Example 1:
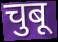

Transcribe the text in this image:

चुबू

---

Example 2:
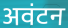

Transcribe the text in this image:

अवंटन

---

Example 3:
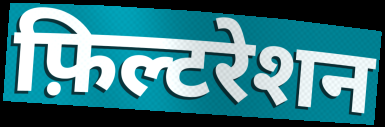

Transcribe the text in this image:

फ़िल्टरेशन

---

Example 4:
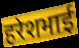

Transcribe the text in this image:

हरेशभाई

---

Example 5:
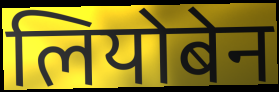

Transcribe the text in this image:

लियोबेन